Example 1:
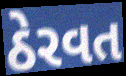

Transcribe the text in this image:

ઠેરવત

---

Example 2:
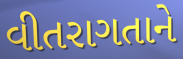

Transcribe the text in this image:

વીતરાગતાને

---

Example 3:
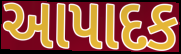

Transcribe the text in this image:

આપાદક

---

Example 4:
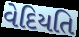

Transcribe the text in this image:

વેદિયતિ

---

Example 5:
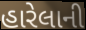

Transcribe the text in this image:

હારેલાની